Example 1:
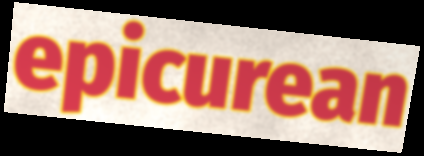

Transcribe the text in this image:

epicurean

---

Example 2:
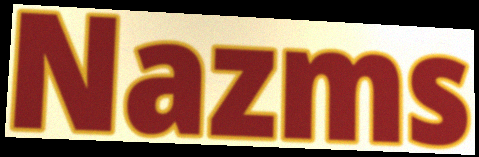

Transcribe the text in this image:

Nazms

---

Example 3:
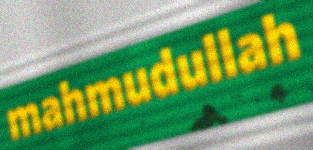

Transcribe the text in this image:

mahmudullah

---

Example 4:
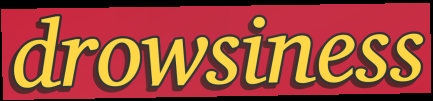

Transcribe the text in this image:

drowsiness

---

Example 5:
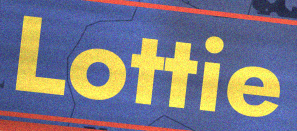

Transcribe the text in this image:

Lottie